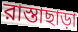
রাস্তাছাড়া